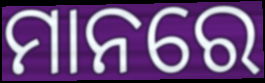
ମାନରେ